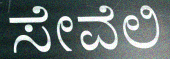
ಸೇವೆಲಿ